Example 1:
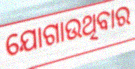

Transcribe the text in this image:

ଯୋଗାଉଥିବାର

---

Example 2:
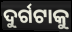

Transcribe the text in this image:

ଦୁର୍ଗଟାକୁ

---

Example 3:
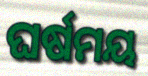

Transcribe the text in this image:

ଘର୍ଷମୟ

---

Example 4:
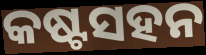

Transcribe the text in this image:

କଷ୍ଟସହନ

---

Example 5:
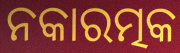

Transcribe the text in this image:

ନକାରତ୍ମକ